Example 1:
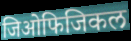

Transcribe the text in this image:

जिओफिजिकल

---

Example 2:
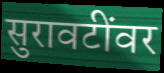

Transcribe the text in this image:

सुरावटींवर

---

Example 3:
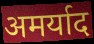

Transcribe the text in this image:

अमर्याद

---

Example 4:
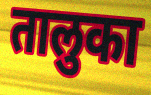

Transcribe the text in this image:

तालुका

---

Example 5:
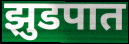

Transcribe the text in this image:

झुडपात